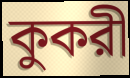
কুকরী